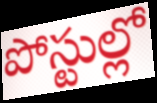
పోస్టుల్లో